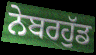
ਨੇਬਰਹੁੱਡ